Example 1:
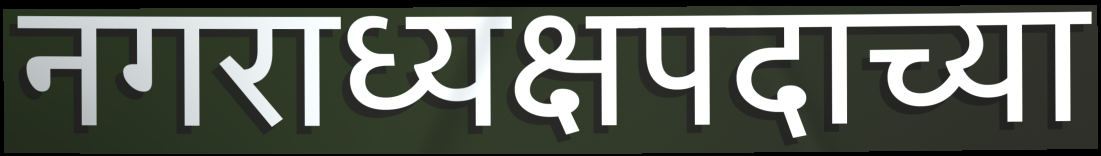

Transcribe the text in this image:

नगराध्यक्षपदाच्या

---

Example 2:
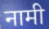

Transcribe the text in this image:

नामी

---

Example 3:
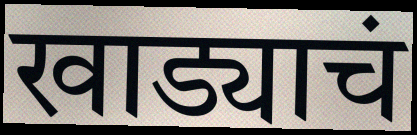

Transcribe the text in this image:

खाड्याचं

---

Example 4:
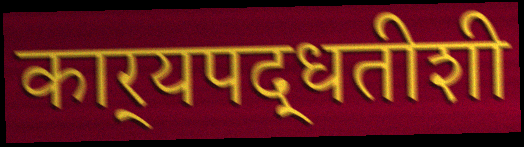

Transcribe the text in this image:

कार्यपद्धतीशी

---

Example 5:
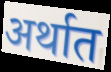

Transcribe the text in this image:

अर्थात